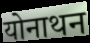
योनाथन